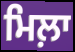
ਮਿਲ਼ਾ